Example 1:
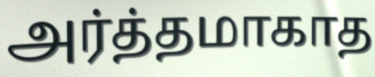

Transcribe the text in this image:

அர்த்தமாகாத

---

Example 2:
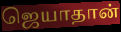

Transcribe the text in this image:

ஜெயாதான்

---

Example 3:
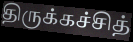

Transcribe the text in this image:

திருக்கச்சித்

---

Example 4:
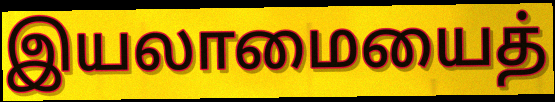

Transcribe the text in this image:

இயலாமையைத்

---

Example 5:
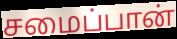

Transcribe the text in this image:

சமைப்பான்